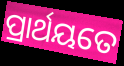
ପ୍ରାର୍ଥୟତେ